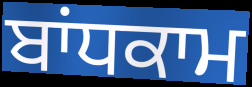
ਬਾਂਧਕਾਮ